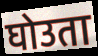
घोउता